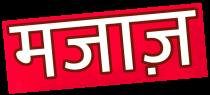
मजाज़